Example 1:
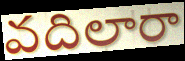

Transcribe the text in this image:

వదిలారా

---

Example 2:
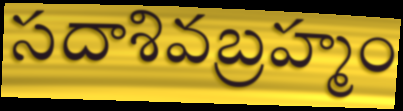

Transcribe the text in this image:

సదాశివబ్రహ్మం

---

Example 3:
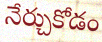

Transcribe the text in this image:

నేర్చుకోడం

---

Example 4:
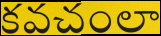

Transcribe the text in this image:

కవచంలా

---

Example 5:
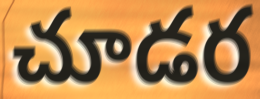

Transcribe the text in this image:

చూడర